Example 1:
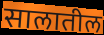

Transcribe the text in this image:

सालातील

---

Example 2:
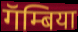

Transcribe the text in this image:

गॅम्बिया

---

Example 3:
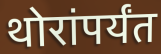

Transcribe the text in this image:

थोरांपर्यंत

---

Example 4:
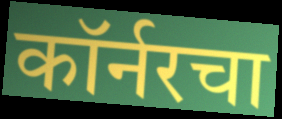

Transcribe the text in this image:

कॉर्नरचा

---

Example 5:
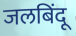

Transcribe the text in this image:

जलबिंदू